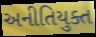
અનીતિયુક્ત